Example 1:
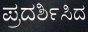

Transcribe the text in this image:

ಪ್ರದರ್ಶಿಸಿದ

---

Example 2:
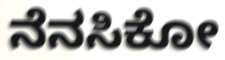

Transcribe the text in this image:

ನೆನಸಿಕೋ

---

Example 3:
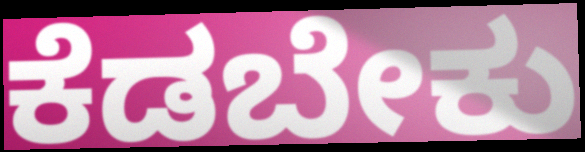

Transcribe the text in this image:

ಕೆಡಬೇಕು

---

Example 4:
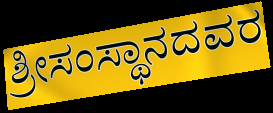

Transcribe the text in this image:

ಶ್ರೀಸಂಸ್ಥಾನದವರ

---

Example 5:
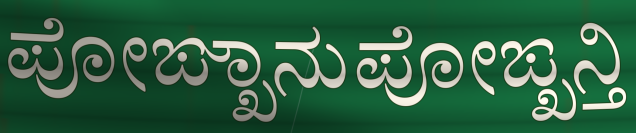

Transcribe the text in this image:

ಪೋಙ್ಖಾನುಪೋಙ್ಖನ್ತಿ